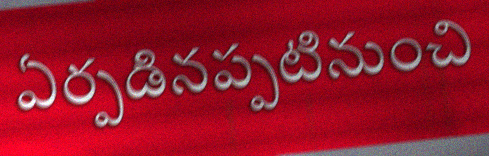
ఏర్పడినప్పటినుంచి